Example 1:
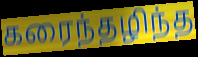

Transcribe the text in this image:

கரைந்தழிந்த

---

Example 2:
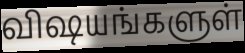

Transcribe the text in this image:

விஷயங்களுள்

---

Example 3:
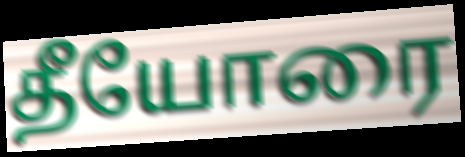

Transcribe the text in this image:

தீயோரை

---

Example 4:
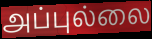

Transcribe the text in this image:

அப்புல்லை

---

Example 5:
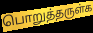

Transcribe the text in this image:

பொறுத்தருள்க